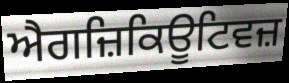
ਐਗਜ਼ਿਕਿਊਟਿਵਜ਼